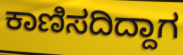
ಕಾಣಿಸದಿದ್ದಾಗ